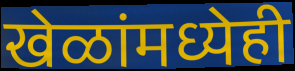
खेळांमध्येही